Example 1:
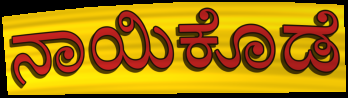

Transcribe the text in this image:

ನಾಯಿಕೊಡೆ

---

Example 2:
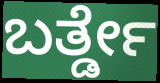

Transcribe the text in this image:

ಬರ್ತ್ಡೇ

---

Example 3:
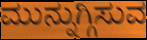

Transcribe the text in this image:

ಮುನ್ನುಗ್ಗಿಸುವ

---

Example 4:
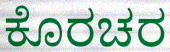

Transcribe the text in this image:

ಕೊರಚರ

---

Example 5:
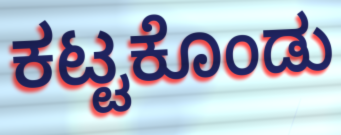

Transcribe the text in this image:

ಕಟ್ಟಕೊಂಡು